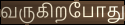
வருகிறபோது